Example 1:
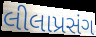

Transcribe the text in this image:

લીલાપ્રસંગ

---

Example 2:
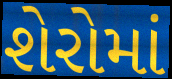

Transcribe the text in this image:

શેરોમાં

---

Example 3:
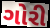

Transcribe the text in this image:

ગોરી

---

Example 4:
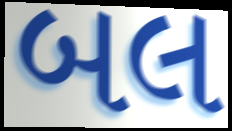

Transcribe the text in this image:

બલ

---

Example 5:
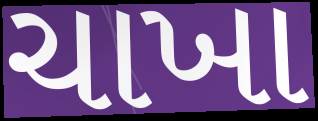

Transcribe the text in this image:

ચાખા